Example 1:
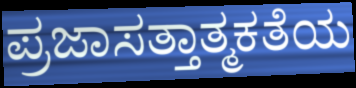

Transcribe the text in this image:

ಪ್ರಜಾಸತ್ತಾತ್ಮಕತೆಯ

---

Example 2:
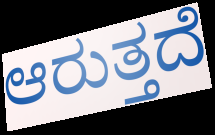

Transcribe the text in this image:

ಆರುತ್ತದೆ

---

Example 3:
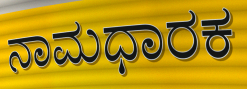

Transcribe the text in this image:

ನಾಮಧಾರಕ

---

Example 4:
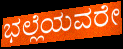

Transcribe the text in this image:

ಭಲ್ಲೆಯವರೇ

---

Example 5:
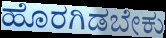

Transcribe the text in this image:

ಹೊರಗಿಡಬೇಕು